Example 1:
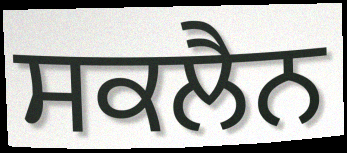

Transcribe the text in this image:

ਸਕਲੈਨ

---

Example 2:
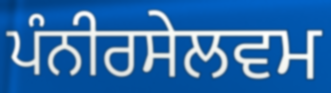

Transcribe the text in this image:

ਪੰਨੀਰਸੇਲਵਮ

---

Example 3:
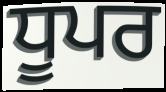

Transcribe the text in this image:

ਧੂਪਰ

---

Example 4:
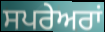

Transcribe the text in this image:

ਸਪਰੇਅਰਾਂ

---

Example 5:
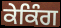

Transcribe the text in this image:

ਕੇਕਿੰਗ